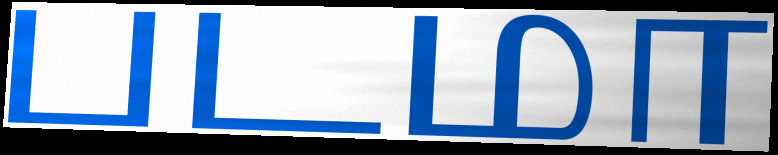
படமா